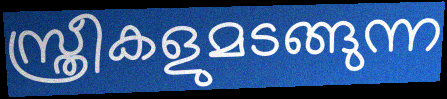
സ്ത്രീകളുമടങ്ങുന്ന